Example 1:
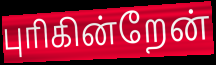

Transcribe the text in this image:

புரிகின்றேன்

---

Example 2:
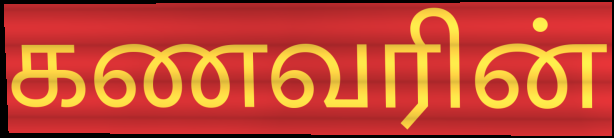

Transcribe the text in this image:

கணவரின்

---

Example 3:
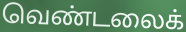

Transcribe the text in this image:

வெண்டலைக்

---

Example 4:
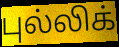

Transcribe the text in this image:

புல்லிக்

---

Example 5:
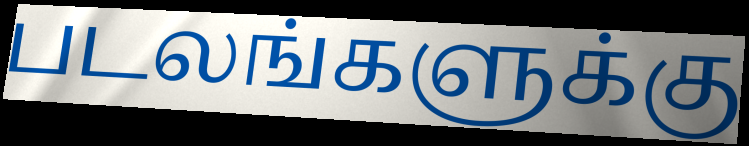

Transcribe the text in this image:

படலங்களுக்கு